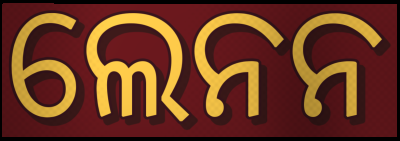
ଲେନନ